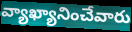
వ్యాఖ్యానించేవారు